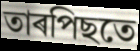
তাৰপিছতে